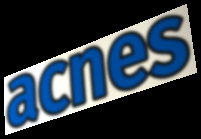
acnes